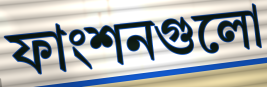
ফাংশনগুলো